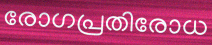
രോഗപ്രതിരോധ